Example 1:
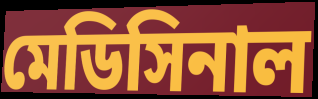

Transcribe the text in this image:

মেডিসিনাল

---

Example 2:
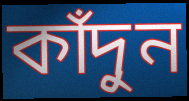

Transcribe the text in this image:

কাঁদুন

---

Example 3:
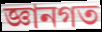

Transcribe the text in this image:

জ্ঞানগত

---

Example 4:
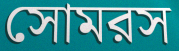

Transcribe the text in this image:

সোমরস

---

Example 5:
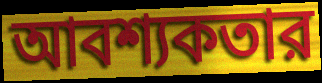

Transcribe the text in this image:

আবশ্যকতার